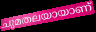
ചുമതലയായാണ്